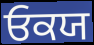
ਓਕਯ